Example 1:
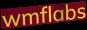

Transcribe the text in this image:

wmflabs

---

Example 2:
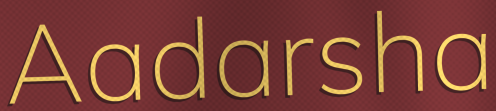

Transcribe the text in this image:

Aadarsha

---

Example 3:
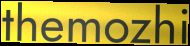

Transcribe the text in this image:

themozhi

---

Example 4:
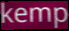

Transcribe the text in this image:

kemp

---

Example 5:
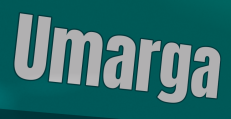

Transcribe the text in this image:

Umarga